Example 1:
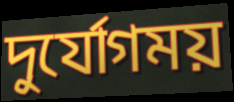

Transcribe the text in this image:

দুর্যোগময়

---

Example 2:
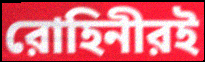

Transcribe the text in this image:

রোহিনীরই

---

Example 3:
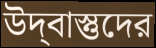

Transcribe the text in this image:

উদ্‌বাস্তুদের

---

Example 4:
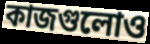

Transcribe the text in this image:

কাজগুলোও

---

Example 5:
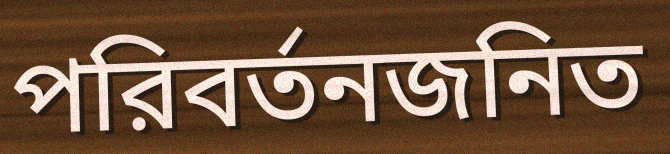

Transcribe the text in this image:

পরিবর্তনজনিত